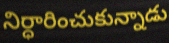
నిర్ధారించుకున్నాడు